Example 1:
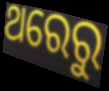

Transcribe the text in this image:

ଥରେରୁ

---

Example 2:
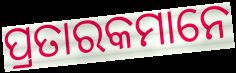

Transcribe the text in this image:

ପ୍ରତାରକମାନେ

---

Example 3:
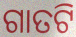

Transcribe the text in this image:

ଗାତଟି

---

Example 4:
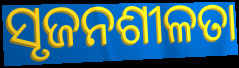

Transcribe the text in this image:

ସୃଜନଶୀଳତା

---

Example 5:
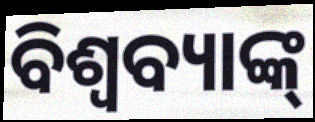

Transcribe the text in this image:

ବିଶ୍ଵବ୍ୟାଙ୍କ୍